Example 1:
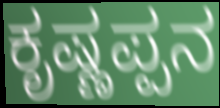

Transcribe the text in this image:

ಕೃಷ್ಣಪ್ಪನ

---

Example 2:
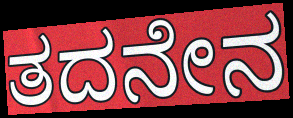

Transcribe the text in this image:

ತದನೇನ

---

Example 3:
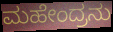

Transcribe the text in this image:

ಮಹೇಂದ್ರನು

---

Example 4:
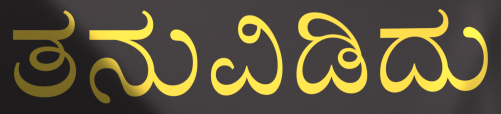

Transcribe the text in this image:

ತನುವಿಡಿದು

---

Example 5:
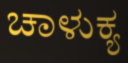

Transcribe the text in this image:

ಚಾಳುಕ್ಯ